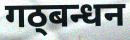
गठ्बन्धन